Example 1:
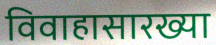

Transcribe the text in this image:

विवाहासारख्या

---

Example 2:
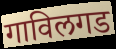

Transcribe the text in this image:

गाविलगड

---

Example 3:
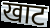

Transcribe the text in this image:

खाट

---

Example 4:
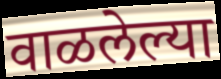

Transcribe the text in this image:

वाळलेल्या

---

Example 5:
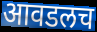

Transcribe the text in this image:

आवडलच